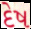
દેષ